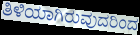
ತಿಳಿಯಾಗಿರುವುದರಿಂದ